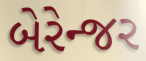
બેરેન્જર